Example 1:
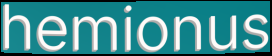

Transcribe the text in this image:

hemionus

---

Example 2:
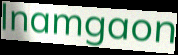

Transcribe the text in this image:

Inamgaon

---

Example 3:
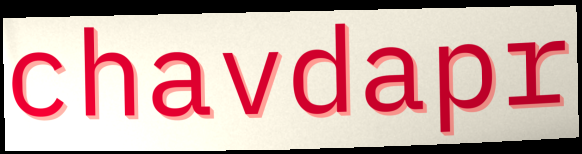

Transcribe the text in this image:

chavdapr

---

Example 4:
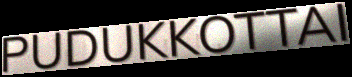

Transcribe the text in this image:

PUDUKKOTTAI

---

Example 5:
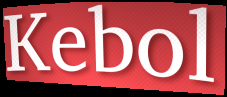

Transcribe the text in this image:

Kebol